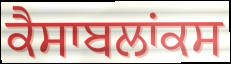
ਕੈਸਾਬਲਾਂਕਸ